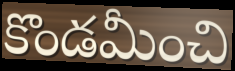
కొండమీంచి